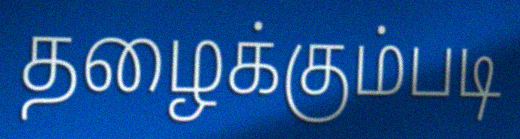
தழைக்கும்படி